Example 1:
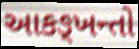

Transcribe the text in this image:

આકઙ્ખન્તો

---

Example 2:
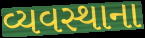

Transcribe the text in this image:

વ્યવસ્થાના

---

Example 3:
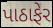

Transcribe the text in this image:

પાઠાફેર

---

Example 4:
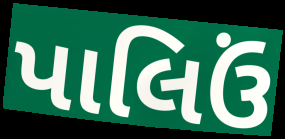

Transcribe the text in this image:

પાલિઉં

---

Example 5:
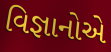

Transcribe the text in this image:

વિજ્ઞાનોએ